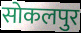
सोकलपुर